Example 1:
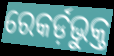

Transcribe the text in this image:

ରେକର୍ଡ଼ଭୁକ୍ତ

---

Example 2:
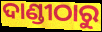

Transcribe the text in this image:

ଦାଣ୍ଡୀଠାରୁ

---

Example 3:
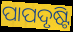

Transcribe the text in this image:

ପାପଦୃଷ୍ଟି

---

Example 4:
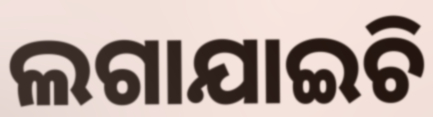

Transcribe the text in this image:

ଲଗାଯାଇଚି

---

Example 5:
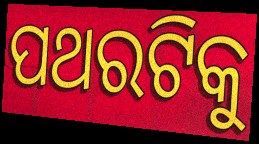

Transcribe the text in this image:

ପଥରଟିକୁ